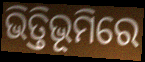
ଭିତ୍ତିଭୂମିରେ